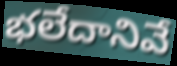
భలేదానివే